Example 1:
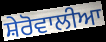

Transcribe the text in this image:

ਸ਼ੇਰੋਵਾਲੀਆ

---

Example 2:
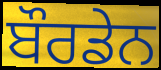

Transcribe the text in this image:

ਬੌਰਡੇਨ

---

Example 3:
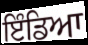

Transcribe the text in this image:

ਇੰਡਿਆ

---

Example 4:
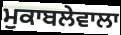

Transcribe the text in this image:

ਮੁਕਾਬਲੇਵਾਲਾ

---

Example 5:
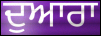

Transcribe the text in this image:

ਦੁਆਰਾ